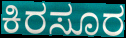
ಕಿರಸೂರ